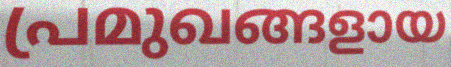
പ്രമുഖങ്ങളായ